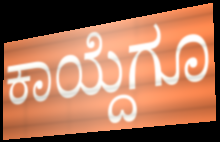
ಕಾಯ್ದೆಗೂ